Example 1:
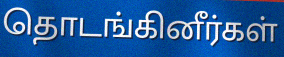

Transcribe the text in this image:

தொடங்கினீர்கள்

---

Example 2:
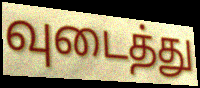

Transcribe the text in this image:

வுடைத்து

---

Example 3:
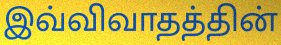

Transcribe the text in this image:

இவ்விவாதத்தின்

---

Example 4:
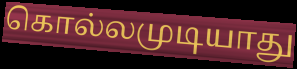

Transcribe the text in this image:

கொல்லமுடியாது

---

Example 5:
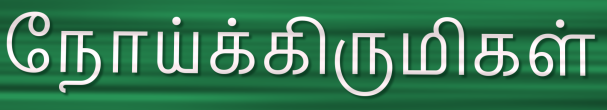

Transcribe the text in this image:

நோய்க்கிருமிகள்